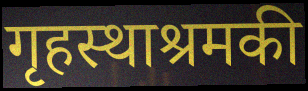
गृहस्थाश्रमकी